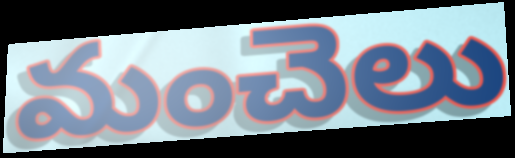
మంచెలు